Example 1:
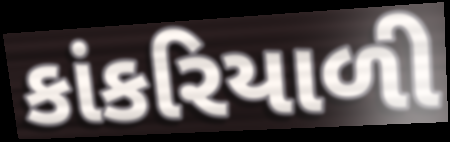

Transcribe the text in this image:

કાંકરિયાળી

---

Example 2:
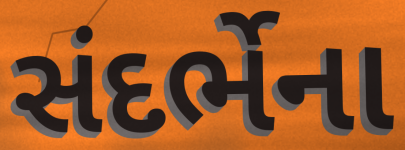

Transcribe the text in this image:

સંદર્ભેના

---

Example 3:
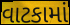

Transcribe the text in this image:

વાટકામાં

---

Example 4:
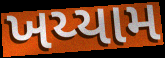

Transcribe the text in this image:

ખય્યામ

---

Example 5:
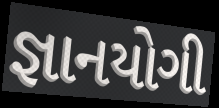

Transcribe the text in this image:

જ્ઞાનયોગી